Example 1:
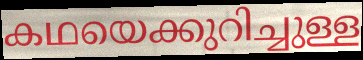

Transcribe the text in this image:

കഥയെക്കുറിച്ചുള്ള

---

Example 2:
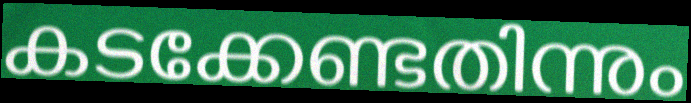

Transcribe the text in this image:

കടക്കേണ്ടതിന്നും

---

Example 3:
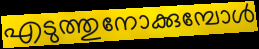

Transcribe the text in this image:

എടുത്തുനോക്കുമ്പോൾ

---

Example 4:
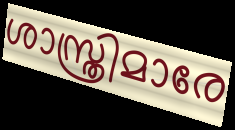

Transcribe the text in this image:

ശാസ്ത്രിമാരേ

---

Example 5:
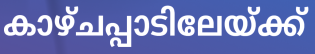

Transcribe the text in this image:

കാഴ്ചപ്പാടിലേയ്ക്ക്